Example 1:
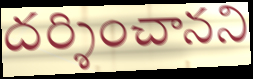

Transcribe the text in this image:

దర్శించానని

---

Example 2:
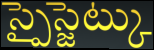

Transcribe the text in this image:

స్పైస్జెట్కు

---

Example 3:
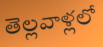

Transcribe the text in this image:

తెల్లవాళ్లలో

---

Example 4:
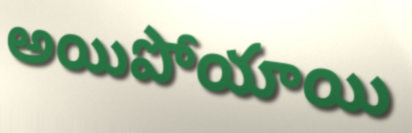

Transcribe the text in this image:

అయిపోయాయి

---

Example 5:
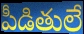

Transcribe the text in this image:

పీడితులే